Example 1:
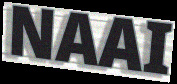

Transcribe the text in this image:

NAAI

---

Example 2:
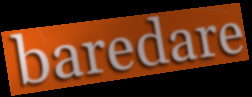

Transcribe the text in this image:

baredare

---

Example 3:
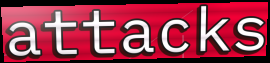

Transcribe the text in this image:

attacks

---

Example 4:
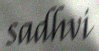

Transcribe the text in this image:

sadhvi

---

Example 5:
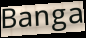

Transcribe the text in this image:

Banga